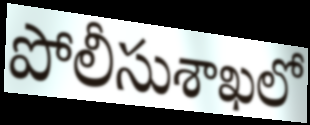
పోలీసుశాఖలో